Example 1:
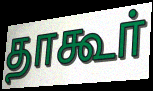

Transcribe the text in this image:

தாகூர்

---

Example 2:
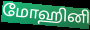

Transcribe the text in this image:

மோஹினி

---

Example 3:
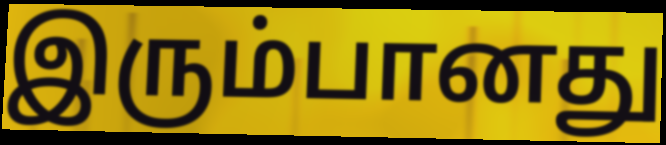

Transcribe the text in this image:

இரும்பானது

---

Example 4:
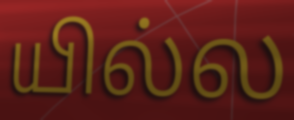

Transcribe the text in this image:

யில்ல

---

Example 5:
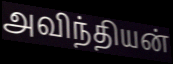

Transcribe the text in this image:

அவிந்தியன்